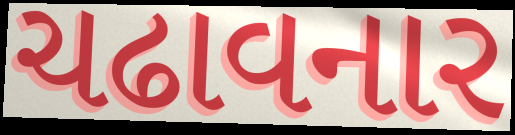
ચઢાવનાર